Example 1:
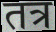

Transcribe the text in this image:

तत्र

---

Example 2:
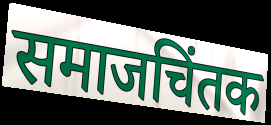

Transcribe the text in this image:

समाजचिंतक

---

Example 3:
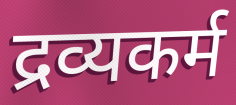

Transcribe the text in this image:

द्रव्यकर्म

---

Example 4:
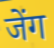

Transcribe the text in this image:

जेंग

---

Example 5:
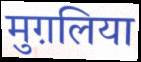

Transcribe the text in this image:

मुग़लिया